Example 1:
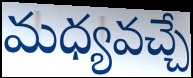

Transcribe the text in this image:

మధ్యవచ్చే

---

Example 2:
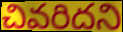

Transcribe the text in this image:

చివరిదని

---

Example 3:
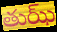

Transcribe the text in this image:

తుఝ్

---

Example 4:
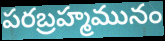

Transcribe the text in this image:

పరబ్రహ్మమునం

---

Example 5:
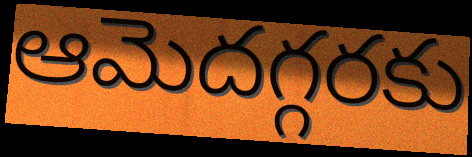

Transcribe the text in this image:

ఆమెదగ్గరకు